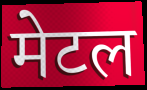
मेटल